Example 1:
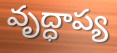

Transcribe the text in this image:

వృద్ధాప్య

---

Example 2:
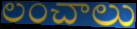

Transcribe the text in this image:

లంచాలు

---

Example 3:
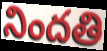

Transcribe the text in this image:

నిందతి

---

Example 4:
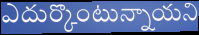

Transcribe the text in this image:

ఎదుర్కొంటున్నాయని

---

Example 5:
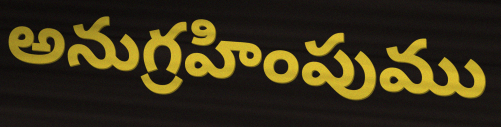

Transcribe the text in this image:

అనుగ్రహింపుము